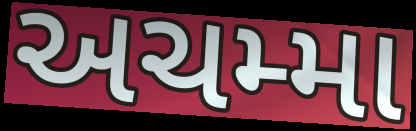
અચમ્મા